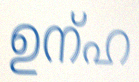
ഉന്ഹ